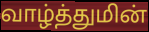
வாழ்த்துமின்